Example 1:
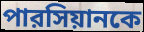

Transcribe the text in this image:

পারসিয়ানকে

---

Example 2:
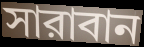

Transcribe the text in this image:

সারাবান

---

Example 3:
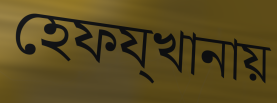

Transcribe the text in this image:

হেফয্খানায়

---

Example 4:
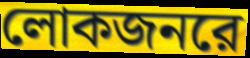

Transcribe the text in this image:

লোকজনরে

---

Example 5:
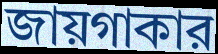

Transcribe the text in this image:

জায়গাকার